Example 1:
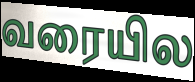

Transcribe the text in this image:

வரையில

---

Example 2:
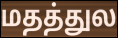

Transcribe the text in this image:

மதத்துல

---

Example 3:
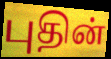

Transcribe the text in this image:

புதின்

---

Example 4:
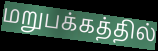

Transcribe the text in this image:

மறுபக்கத்தில்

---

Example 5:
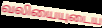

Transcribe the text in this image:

வலியையுடைய